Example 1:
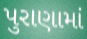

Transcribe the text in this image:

પુરાણામાં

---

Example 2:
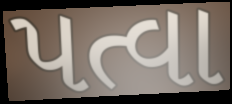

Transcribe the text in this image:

પત્વા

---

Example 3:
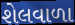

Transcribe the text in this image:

શેલવાળા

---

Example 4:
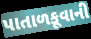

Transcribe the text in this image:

પાતાળકૂવાની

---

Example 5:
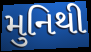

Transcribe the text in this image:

મુનિથી